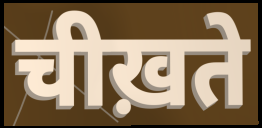
चीख़ते